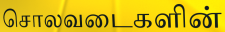
சொலவடைகளின்